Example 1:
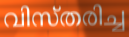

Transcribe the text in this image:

വിസ്തരിച്ച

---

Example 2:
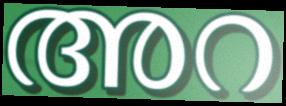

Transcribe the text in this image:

അറ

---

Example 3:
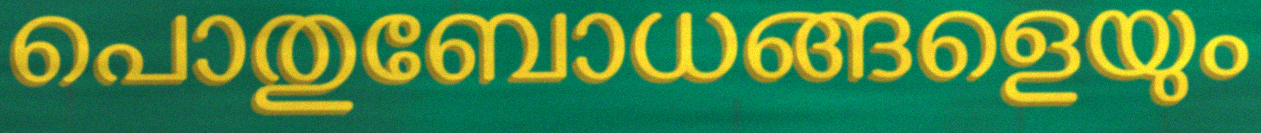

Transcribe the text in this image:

പൊതുബോധങ്ങളെയും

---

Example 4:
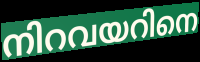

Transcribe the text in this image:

നിറവയറിനെ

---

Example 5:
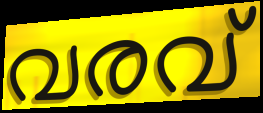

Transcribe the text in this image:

വരവ്